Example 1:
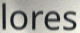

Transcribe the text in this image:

lores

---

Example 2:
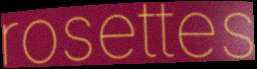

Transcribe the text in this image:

rosettes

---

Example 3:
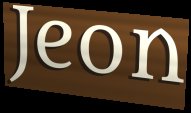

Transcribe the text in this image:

Jeon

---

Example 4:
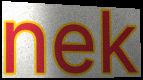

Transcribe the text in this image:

nek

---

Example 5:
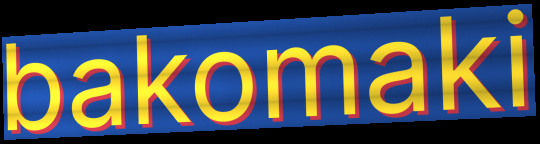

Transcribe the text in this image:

bakomaki